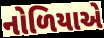
નોળિયાએ